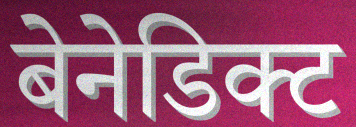
बेनेडिक्ट